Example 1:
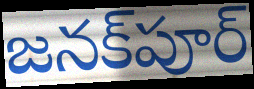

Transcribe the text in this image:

జనక్‌పూర్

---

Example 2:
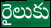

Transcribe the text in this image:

రైలుకు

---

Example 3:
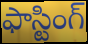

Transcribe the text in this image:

ఫాస్టింగ్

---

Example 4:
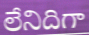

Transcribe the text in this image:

లేనిదిగా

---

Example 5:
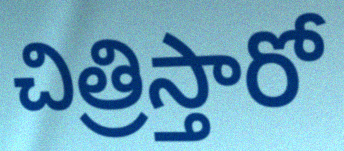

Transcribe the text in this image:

చిత్రిస్తారో